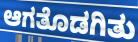
ಆಗತೊಡಗಿತು